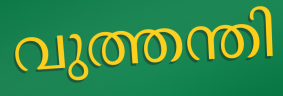
വുത്തന്തി